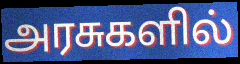
அரசுகளில்